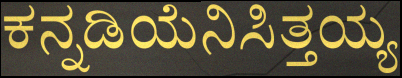
ಕನ್ನಡಿಯೆನಿಸಿತ್ತಯ್ಯ